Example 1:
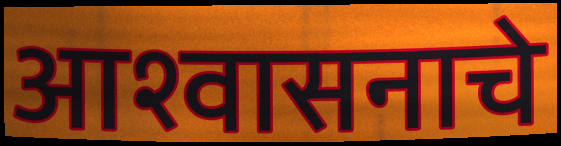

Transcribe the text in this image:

आश्वासनाचे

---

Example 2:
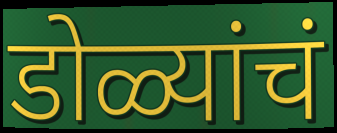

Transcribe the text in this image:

डोळ्यांचं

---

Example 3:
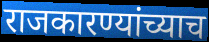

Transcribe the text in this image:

राजकारण्यांच्याच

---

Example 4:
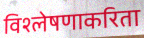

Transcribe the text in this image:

विश्लेषणाकरिता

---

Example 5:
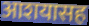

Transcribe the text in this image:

आशयासह